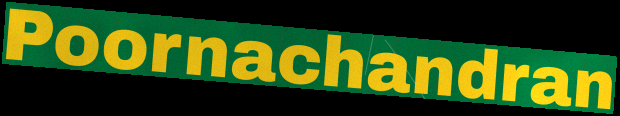
Poornachandran